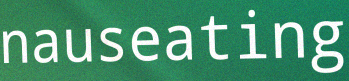
nauseating